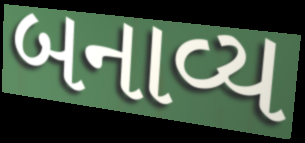
બનાવ્ય